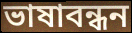
ভাষাবন্ধন